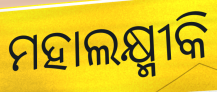
ମହାଲକ୍ଷ୍ମୀକି